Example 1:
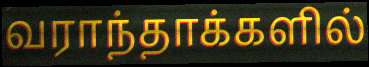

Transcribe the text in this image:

வராந்தாக்களில்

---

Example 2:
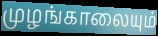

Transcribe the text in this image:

முழங்காலையும்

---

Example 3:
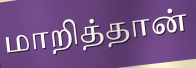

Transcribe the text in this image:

மாறித்தான்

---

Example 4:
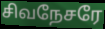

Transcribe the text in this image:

சிவநேசரே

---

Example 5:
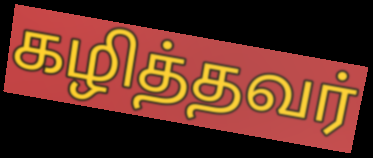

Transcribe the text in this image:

கழித்தவர்